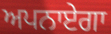
ਅਪਨਾਏਗਾ